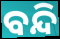
ବନ୍ଦି